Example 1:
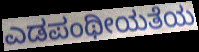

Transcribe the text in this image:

ಎಡಪಂಥೀಯತೆಯ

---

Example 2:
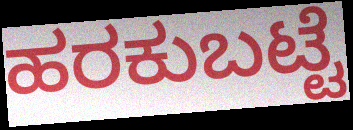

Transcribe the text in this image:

ಹರಕುಬಟ್ಟೆ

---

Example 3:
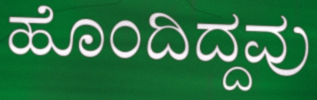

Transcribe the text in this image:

ಹೊಂದಿದ್ದವು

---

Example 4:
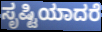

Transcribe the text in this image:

ಸೃಷ್ಟಿಯಾದರೆ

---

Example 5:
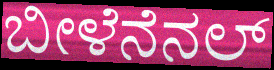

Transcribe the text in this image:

ಬೀಳೆನೆನಲ್